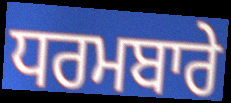
ਧਰਮਬਾਰੇ